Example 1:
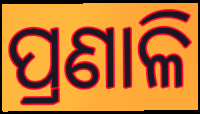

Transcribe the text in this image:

ପ୍ରଣାଳି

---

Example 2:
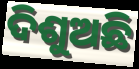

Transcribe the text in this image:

ଦିଶୁଅଛି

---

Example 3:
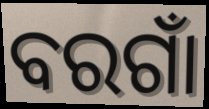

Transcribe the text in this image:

ବରଗାଁ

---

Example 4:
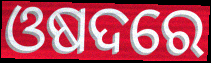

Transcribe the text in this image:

ଓଷଦରେ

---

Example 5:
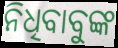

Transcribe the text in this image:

ନିଧିବାବୁଙ୍କ